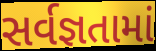
સર્વજ્ઞતામાં